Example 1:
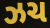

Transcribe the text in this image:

ઝચ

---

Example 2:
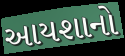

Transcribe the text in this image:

આયશાનો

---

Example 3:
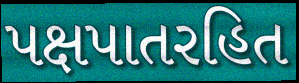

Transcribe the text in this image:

પક્ષપાતરહિત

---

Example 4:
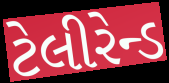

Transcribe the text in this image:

ટેલીરેન્ડ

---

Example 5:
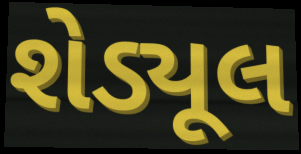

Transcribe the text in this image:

શેડ્યૂલ